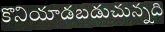
కొనియాడబడుచున్నది